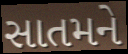
સાતમને